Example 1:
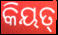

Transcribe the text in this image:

କିୟତ୍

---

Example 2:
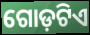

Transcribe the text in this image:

ଗୋଡ଼ଟିଏ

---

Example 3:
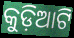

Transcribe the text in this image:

କୁଡ଼ିଆଟି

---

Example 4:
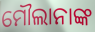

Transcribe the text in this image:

ମୌଲାନାଙ୍କ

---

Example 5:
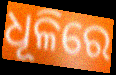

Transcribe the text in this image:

ଧୂଳିରେ